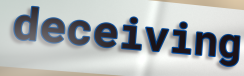
deceiving